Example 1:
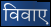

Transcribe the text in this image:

विवाए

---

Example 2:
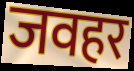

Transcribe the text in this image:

जवहर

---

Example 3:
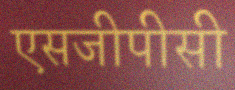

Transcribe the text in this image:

एसजीपीसी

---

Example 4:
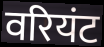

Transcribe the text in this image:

वरियंट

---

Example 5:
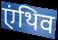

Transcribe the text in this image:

एंथिव